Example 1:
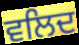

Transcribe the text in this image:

ਵਲਿਦ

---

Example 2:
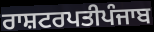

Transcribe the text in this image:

ਰਾਸ਼ਟਰਪਤੀਪੰਜਾਬ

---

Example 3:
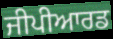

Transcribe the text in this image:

ਜੀਪੀਆਰਡ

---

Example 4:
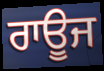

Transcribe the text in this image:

ਰਾਊਜ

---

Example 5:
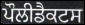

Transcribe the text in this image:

ਪੌਲੀਡੈਕਟਸ